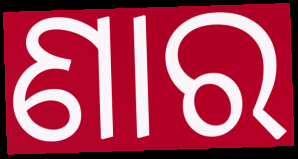
ଣାର